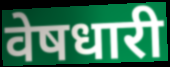
वेषधारी